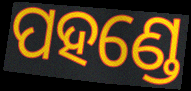
ପହଣ୍ଡେ